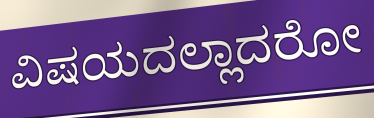
ವಿಷಯದಲ್ಲಾದರೋ